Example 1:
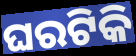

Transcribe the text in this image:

ଘରଟିକି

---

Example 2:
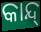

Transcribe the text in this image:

କାନ୍ଦ୍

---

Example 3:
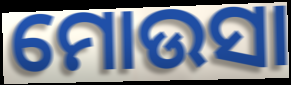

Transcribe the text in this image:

ମୋଉସା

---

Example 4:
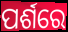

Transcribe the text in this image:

ପର୍ଶରେ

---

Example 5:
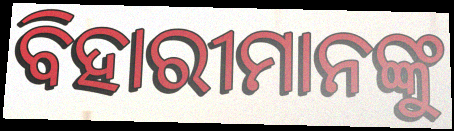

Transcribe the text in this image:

ବିହାରୀମାନଙ୍କୁ